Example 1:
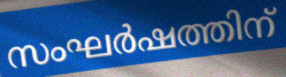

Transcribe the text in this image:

സംഘർഷത്തിന്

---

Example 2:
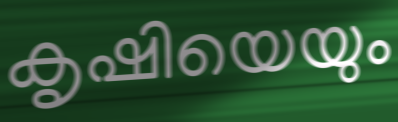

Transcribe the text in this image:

കൃഷിയെയും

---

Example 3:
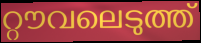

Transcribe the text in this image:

റ്റൗവലെടുത്ത്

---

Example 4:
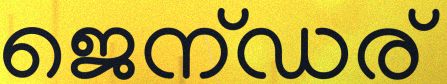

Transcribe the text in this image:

ജെന്ഡര്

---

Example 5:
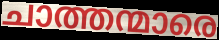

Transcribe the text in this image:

ചാത്തന്മാരെ